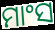
ମାଂସ